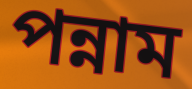
পন্নাম